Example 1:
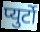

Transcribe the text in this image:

प्युर्टो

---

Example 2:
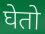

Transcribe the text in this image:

घेतो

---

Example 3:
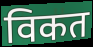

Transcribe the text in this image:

विकत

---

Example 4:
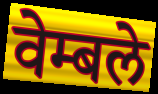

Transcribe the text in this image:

वेम्बले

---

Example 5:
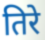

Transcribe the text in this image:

तिरे